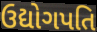
ઉદ્યોગપતિ